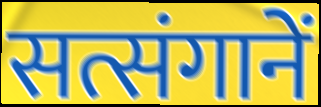
सत्संगानें